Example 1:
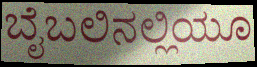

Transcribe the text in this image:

ಬೈಬಲಿನಲ್ಲಿಯೂ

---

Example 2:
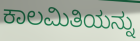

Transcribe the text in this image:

ಕಾಲಮಿತಿಯನ್ನು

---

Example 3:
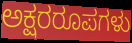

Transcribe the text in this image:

ಅಕ್ಷರರೂಪಗಳು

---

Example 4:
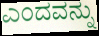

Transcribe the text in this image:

ಎಂದವನ್ನು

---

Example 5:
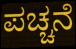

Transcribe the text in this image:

ಪಚ್ಚನೆ